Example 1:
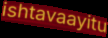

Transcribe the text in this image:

ishtavaayitu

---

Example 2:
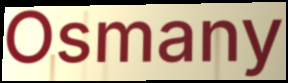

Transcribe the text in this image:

Osmany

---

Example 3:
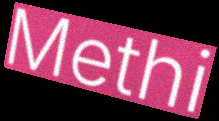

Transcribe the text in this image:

Methi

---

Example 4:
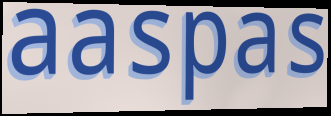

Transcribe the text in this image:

aaspas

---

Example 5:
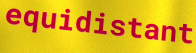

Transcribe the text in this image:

equidistant